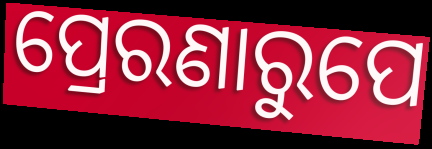
ପ୍ରେରଣାରୁପେ